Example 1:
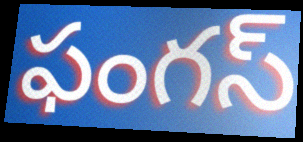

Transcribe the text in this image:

ఫంగస్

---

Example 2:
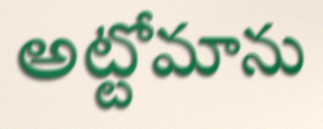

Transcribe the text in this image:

అట్టోమాను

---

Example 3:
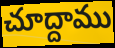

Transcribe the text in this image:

చూద్దాము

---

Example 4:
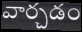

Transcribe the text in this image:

వార్చడం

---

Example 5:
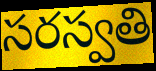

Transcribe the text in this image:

సరస్వతి